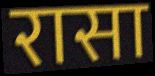
रासा